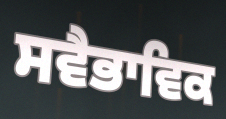
ਸਵੈਭਾਵਿਕ